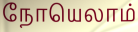
நோயெலாம்